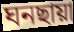
ঘনছায়া